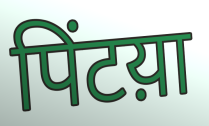
पिंटय़ा